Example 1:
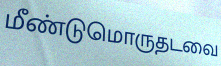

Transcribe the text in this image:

மீண்டுமொருதடவை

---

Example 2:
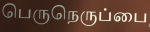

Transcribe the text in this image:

பெருநெருப்பை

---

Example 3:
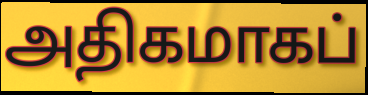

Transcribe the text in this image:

அதிகமாகப்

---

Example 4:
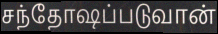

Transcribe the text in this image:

சந்தோஷப்படுவான்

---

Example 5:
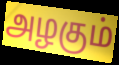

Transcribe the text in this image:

அழகும்